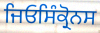
ਜਿਓਸਿੰਕ੍ਰੋਨਸ